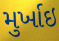
મુર્ખાઇ